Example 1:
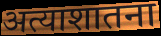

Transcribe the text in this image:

अत्याशातना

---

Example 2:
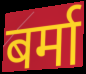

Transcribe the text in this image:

बर्मा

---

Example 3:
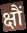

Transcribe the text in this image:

क्षौं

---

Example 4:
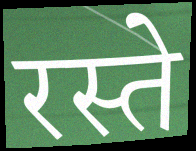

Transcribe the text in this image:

रस्ते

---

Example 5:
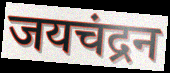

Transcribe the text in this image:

जयचंद्रन